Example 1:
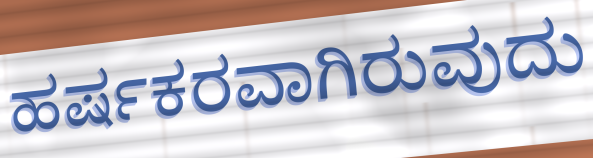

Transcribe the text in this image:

ಹರ್ಷಕರವಾಗಿರುವುದು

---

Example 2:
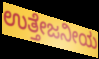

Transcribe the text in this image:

ಉತ್ತೇಜನೀಯ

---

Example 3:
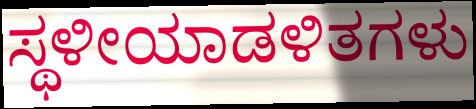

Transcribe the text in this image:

ಸ್ಥಳೀಯಾಡಳಿತಗಳು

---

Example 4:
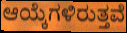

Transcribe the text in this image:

ಆಯ್ಕೆಗಳಿರುತ್ತವೆ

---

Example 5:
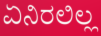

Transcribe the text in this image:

ಏನಿರಲಿಲ್ಲ